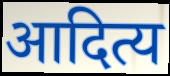
आदित्य